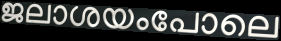
ജലാശയംപോലെ